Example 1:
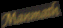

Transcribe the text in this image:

Manmath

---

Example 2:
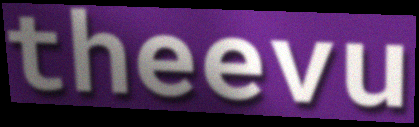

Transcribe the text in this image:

theevu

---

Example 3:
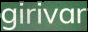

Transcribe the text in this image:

girivar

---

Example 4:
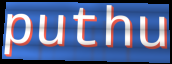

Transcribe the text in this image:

puthu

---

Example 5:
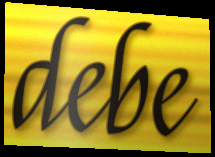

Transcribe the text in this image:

debe